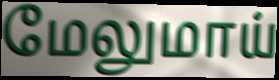
மேலுமாய்